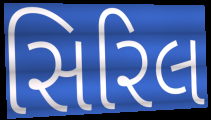
સિરિલ